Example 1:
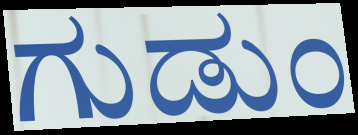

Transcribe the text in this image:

ಗುಡುಂ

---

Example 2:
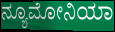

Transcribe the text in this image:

ನ್ಯೂಮೋನಿಯಾ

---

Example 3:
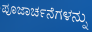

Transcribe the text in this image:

ಪೂಜಾರ್ಚನೆಗಳನ್ನು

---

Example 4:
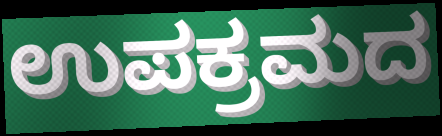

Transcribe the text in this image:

ಉಪಕ್ರಮದ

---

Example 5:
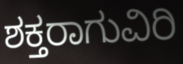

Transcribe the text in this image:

ಶಕ್ತರಾಗುವಿರಿ